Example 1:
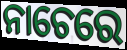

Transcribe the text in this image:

ନାଚେରେ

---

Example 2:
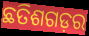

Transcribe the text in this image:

ଛତିଶଗଡ଼ର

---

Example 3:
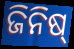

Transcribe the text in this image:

ଜିନିଷ୍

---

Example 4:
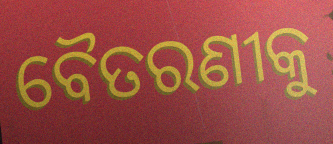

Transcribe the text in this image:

ବୈତରଣୀକୁ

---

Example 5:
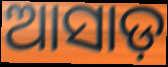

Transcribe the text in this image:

ଆସାଡ଼